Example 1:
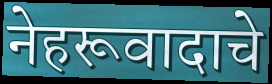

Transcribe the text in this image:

नेहरूवादाचे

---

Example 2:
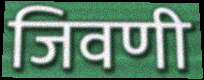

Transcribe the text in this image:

जिवणी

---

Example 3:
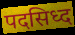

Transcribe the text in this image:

पदसिध्द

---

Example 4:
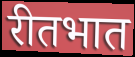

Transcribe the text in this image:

रीतभात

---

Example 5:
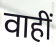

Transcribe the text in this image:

वाहीं